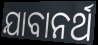
ଯାବାନର୍ଥ